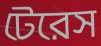
টেরেস